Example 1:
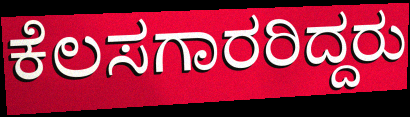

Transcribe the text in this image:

ಕೆಲಸಗಾರರಿದ್ದರು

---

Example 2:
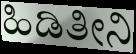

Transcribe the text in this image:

ಹಿಡಿತೀನಿ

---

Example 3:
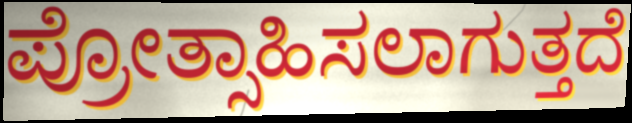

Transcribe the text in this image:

ಪ್ರೋತ್ಸಾಹಿಸಲಾಗುತ್ತದೆ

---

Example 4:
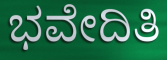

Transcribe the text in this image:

ಭವೇದಿತಿ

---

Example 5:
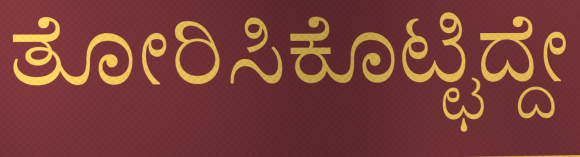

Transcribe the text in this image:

ತೋರಿಸಿಕೊಟ್ಟಿದ್ದೇ